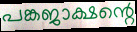
പങ്കജാക്ഷന്റെ